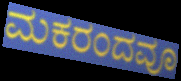
ಮಕರಂದವೂ